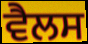
ਵੈਲਸ